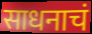
साधनाचं